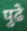
पुढे